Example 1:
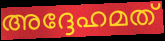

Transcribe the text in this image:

അദ്ദേഹമത്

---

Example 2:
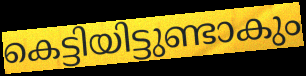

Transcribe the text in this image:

കെട്ടിയിട്ടുണ്ടാകും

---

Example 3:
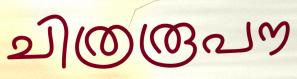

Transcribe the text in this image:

ചിത്രരൂപൗ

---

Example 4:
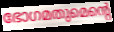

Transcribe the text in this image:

ഭോഗമതുമെന്റെ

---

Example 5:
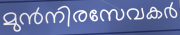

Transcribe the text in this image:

മുൻനിരസേവകർ